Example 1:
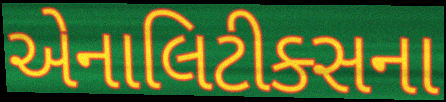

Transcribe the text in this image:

એનાલિટીક્સના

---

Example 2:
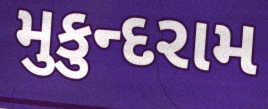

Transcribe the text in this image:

મુકુન્દરામ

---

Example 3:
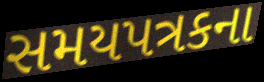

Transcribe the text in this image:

સમયપત્રકના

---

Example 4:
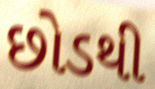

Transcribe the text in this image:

છોડથી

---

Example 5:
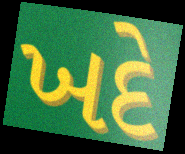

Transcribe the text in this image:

ખદે